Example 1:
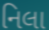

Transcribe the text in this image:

નિલા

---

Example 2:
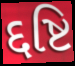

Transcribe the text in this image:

દ્દષ્ટિ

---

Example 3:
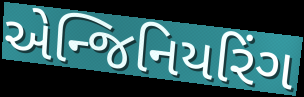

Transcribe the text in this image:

એન્જિનિયરિંગ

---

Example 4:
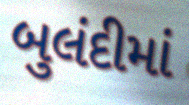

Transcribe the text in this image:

બુલંદીમાં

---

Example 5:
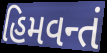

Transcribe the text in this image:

હિમવન્તં